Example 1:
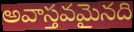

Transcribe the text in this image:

అవాస్తవమైనది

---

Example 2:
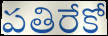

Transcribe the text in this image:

పతిరేకో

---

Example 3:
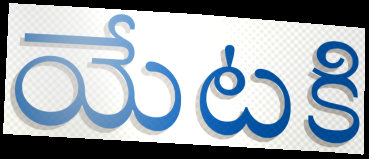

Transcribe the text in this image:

యేటకి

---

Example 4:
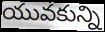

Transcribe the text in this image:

యువకున్ని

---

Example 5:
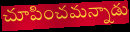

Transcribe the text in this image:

చూపించమన్నాడు